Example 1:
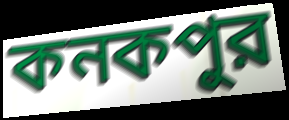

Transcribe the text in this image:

কনকপুর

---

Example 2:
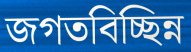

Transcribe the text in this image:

জগতবিচ্ছিন্ন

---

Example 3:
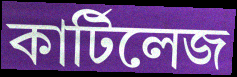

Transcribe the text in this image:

কার্টিলেজ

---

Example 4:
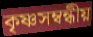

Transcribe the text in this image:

কৃষ্ণসম্বন্ধীয়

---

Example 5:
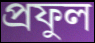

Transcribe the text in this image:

প্রফুল